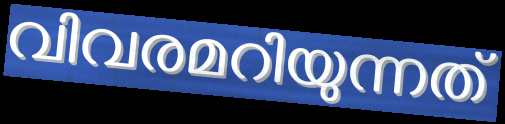
വിവരമറിയുന്നത്